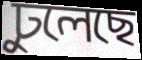
ঢুলেছে